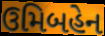
ઉમિબહેન